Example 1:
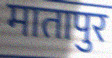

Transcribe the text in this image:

मातापुर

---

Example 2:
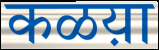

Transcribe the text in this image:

कळय़ा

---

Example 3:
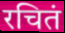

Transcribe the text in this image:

रचितं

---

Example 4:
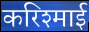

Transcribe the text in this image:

करिश्माई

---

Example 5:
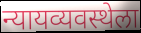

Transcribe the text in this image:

न्यायव्यवस्थेला